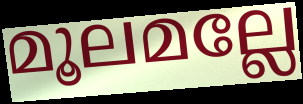
മൂലമല്ലേ